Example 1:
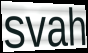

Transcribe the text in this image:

svah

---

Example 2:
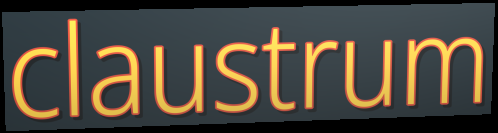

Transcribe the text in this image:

claustrum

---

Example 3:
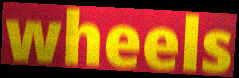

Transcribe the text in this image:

wheels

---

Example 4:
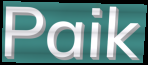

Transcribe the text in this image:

Paik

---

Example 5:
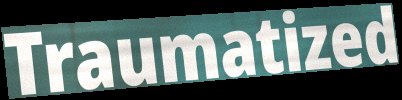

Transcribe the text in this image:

Traumatized